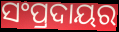
ସଂପ୍ରଦାୟର